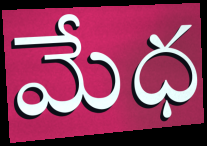
మేధ